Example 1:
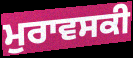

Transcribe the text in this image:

ਮੁਰਾਵਸਕੀ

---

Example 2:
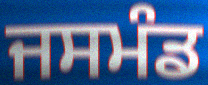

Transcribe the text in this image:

ਜਸਮੰਡ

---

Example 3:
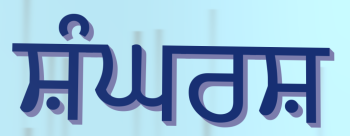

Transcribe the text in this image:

ਸ਼ੰਘਰਸ਼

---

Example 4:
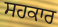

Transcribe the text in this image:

ਸਹਕਾਰ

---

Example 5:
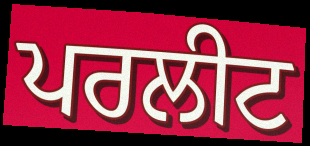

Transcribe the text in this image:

ਪਰਲੀਟ